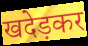
खदेड़कर